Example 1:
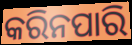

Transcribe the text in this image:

କରିନପାରି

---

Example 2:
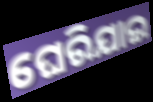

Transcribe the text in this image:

ଘେରିଯାଇ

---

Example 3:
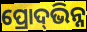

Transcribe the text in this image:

ପ୍ରୋଦ୍‌ଭିନ୍ନ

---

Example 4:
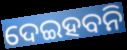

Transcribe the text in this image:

ଦେଇହବନି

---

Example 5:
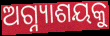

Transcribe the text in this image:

ଅଗ୍ନ୍ୟାଶୟକୁ